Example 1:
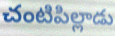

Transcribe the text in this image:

చంటిపిల్లాడు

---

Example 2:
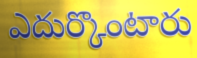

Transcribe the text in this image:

ఎదుర్కొంటారు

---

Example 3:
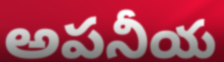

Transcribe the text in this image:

అపనీయ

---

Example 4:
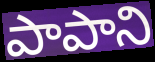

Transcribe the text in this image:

పాపాని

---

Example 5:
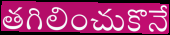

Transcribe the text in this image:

తగిలించుకొనే